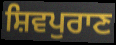
ਸ਼ਿਵਪੁਰਾਣ